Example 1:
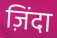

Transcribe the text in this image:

ज़िंदा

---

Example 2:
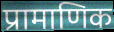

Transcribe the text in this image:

प्रामाणिक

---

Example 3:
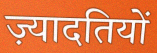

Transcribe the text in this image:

ज़्यादतियों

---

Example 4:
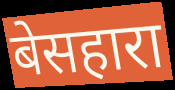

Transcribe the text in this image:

बेसहारा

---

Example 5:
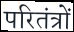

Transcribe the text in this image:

परितंत्रों